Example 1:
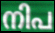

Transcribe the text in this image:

നിപ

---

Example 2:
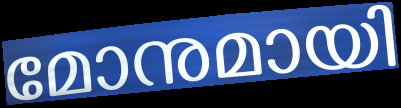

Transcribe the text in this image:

മോനുമായി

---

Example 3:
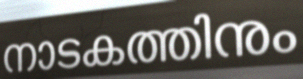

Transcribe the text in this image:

നാടകത്തിനും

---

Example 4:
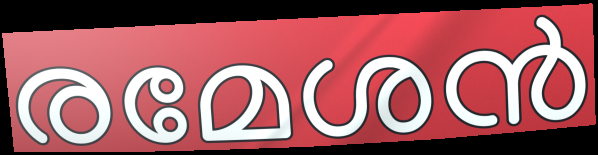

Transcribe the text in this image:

രമേശൻ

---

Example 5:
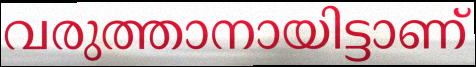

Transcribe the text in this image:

വരുത്താനായിട്ടാണ്